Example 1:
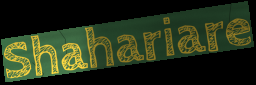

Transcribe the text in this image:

Shahariare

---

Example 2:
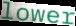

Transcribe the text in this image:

lower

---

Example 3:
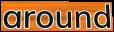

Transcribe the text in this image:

around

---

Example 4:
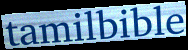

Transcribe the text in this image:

tamilbible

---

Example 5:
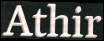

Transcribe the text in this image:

Athir